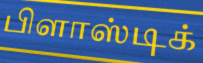
பிளாஸ்டிக்